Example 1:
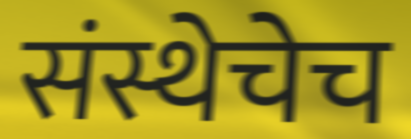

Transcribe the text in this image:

संस्थेचेच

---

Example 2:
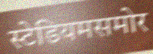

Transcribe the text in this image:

स्टेडियमसमोर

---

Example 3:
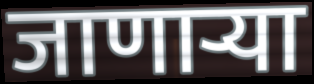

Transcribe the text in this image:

जाणाऱ्या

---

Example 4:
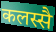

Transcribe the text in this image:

कलस्सै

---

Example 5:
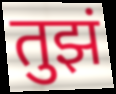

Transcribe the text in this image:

तुझं